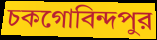
চকগোবিন্দপুর